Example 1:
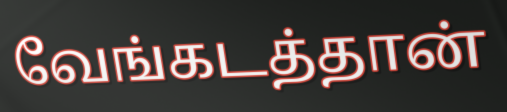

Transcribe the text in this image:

வேங்கடத்தான்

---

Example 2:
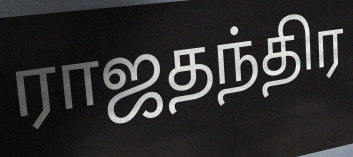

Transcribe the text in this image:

ராஜதந்திர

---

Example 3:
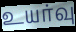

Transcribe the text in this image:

உயர்வு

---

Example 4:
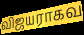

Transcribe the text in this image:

விஜயராகவ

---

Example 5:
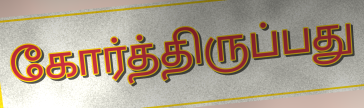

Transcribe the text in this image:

கோர்த்திருப்பது